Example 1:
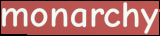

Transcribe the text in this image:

monarchy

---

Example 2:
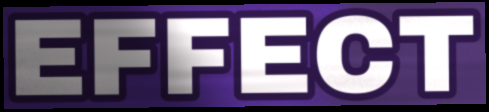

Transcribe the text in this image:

EFFECT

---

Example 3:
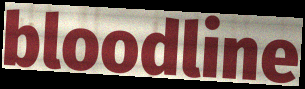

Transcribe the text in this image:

bloodline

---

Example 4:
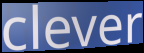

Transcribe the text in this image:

clever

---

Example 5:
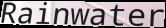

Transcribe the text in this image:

Rainwater